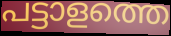
പട്ടാളത്തെ